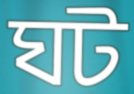
ঘট